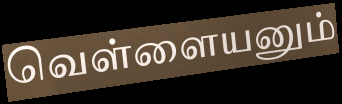
வெள்ளையனும்